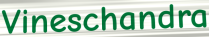
Vineschandra